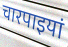
चारपाइयां